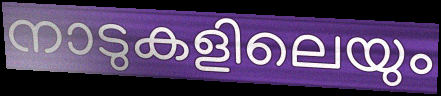
നാടുകളിലെയും